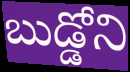
బుడ్డోని